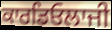
ਕਾਰਡਿਓਲਾਜੀ